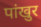
पांखुर